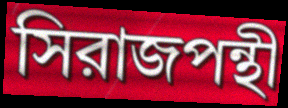
সিরাজপন্থী